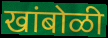
खांबोळी